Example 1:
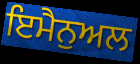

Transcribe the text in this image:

ਇਮੈਨੁਅਲ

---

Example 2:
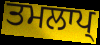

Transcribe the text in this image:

ਤਮਲਾਪ੍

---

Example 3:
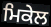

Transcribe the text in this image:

ਮਿਕੇਲ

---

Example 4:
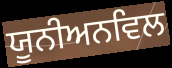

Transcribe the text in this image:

ਯੂਨੀਅਨਵਿਲ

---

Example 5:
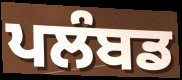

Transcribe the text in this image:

ਪਲੰਬਡ